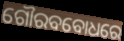
ଗୌରବବୋଧରେ